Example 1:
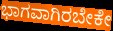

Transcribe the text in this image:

ಭಾಗವಾಗಿರಬೇಕೇ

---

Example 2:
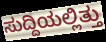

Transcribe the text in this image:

ಸುದ್ದಿಯಲ್ಲಿತ್ತು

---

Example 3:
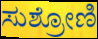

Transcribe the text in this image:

ಸುಶ್ರೋಣಿ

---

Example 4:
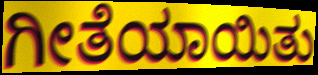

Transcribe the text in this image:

ಗೀತೆಯಾಯಿತು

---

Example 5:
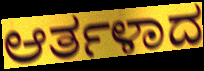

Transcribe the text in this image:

ಆರ್ತಳಾದ